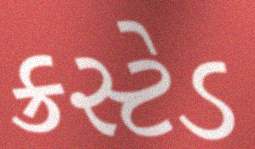
ક્રસ્ટેડ